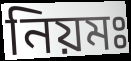
নিয়মঃ